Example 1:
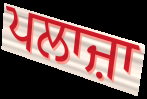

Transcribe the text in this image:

ਪਲਾਜ਼ਾ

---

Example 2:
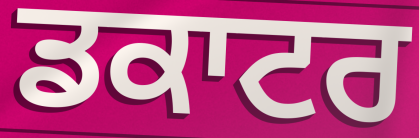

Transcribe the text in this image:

ਡਕਾਟਰ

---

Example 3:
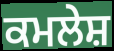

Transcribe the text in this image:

ਕਮਲੇਸ਼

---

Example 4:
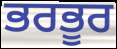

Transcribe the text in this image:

ਭਰਭੂਰ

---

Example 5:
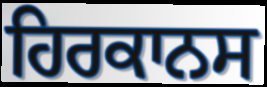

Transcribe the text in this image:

ਹਿਰਕਾਨਸ